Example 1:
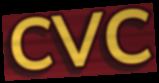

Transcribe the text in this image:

CVC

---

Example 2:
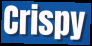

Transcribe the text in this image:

Crispy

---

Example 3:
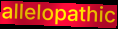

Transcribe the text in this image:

allelopathic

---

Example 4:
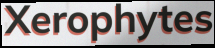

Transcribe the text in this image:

Xerophytes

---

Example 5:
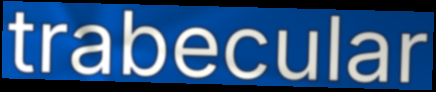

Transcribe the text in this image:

trabecular